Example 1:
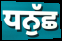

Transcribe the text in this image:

ਧਨੁੱਛ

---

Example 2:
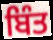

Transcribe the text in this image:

ਬਿੰਤ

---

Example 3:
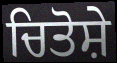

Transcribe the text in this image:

ਚਿਤੋਸ਼ੇ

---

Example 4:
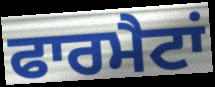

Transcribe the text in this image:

ਫਾਰਮੈਟਾਂ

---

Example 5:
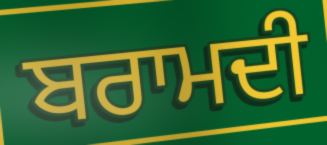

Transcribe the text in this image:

ਬਰਾਮਦੀ